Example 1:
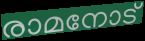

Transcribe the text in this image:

രാമനോട്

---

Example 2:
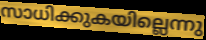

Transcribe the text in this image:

സാധിക്കുകയില്ലെന്നു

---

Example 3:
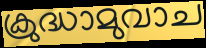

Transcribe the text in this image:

ക്രുദ്ധാമുവാച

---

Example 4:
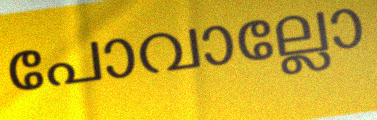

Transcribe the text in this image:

പോവാല്ലോ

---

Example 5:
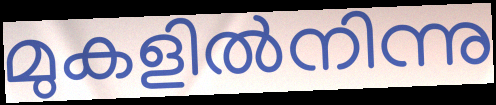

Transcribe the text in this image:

മുകളിൽനിന്നു